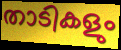
താടികളും